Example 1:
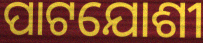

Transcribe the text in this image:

ପାଟଯୋଶୀ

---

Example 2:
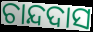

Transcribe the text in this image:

ଚାନ୍ଦଦାସ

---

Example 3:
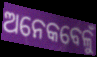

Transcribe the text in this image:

ଅନେକବେଳୁଁ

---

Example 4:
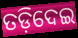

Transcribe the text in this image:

ତଡ଼ିଦେଇ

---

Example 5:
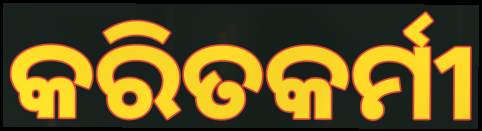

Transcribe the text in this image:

କରିତକର୍ମୀ